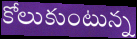
కోలుకుంటున్న